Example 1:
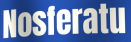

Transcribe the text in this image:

Nosferatu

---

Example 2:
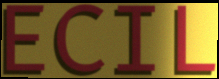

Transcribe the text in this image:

ECIL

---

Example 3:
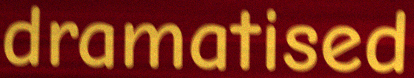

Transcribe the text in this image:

dramatised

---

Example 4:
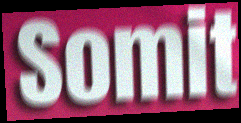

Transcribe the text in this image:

Somit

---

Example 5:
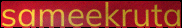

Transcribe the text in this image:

sameekruta